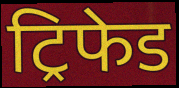
ट्रिफेड